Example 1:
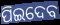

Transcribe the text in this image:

ପିଇଦେବ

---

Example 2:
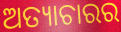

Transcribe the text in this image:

ଅତ୍ୟାଚାରର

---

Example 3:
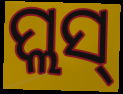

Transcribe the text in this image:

ପ୍ଲସ୍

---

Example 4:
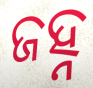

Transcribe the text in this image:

ଜହ୍ନ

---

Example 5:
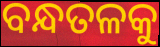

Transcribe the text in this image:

ବନ୍ଧତଳକୁ